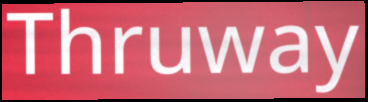
Thruway